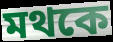
মথকে